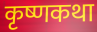
कृष्णकथा